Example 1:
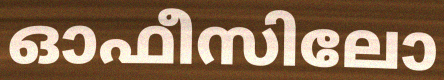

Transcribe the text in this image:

ഓഫീസിലോ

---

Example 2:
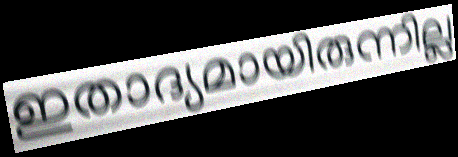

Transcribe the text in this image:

ഇതാദ്യമായിരുന്നില്ല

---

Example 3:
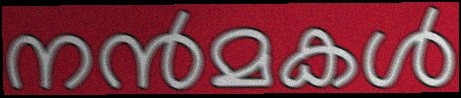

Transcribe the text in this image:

നൻമകൾ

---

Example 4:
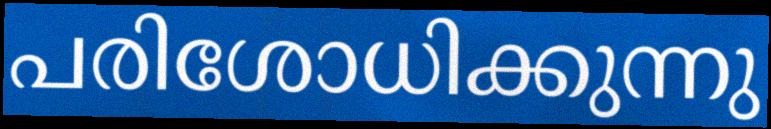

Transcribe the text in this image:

പരിശോധിക്കുന്നു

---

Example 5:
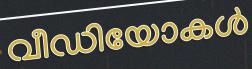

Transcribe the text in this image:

വീഡിയോകൾ